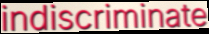
indiscriminate